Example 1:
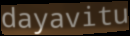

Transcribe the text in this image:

dayavitu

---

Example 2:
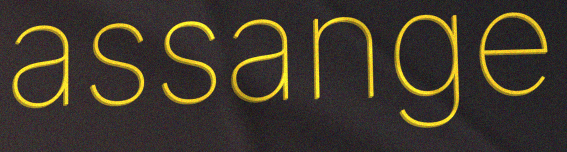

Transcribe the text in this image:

assange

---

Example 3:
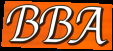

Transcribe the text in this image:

BBA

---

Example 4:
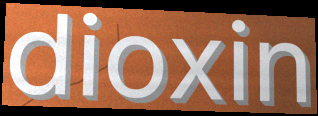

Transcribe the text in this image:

dioxin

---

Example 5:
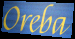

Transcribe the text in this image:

Oreba